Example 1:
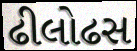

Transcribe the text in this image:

ઢીલોઢસ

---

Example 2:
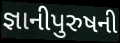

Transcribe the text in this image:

જ્ઞાનીપુરુષની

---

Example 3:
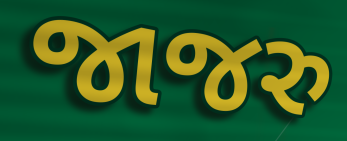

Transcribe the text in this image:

જાજરુ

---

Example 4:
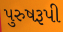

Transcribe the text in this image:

પુરુષરૂપી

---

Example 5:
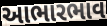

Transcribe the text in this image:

આભારભાવ